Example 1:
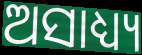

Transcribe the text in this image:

ଅସାଧ୍ୟ୍ୟ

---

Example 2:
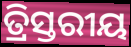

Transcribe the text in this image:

ତ୍ରିସ୍ତରୀୟ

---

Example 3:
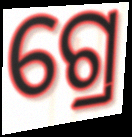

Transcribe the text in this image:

ଗ୍ରେ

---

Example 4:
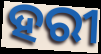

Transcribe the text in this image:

ହରୀ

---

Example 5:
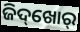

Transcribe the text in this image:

ଜିଦ୍‌ଖୋର୍